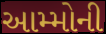
આમ્મોની